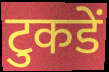
टुकडें